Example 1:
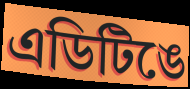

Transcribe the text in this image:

এডিটিঙে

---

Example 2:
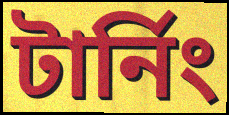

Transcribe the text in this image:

টার্নিং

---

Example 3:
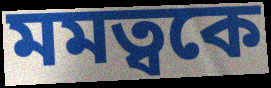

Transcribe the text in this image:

মমত্বকে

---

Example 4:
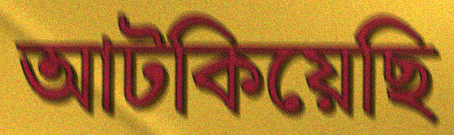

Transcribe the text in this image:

আটকিয়েছি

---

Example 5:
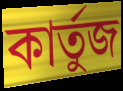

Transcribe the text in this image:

কার্তুজ